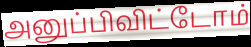
அனுப்பிவிட்டோம்